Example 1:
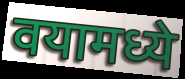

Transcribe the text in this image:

वयामध्ये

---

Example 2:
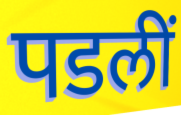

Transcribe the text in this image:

पडलीं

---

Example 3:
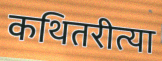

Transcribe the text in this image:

कथितरीत्या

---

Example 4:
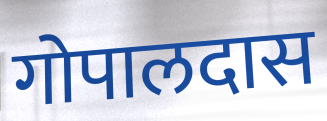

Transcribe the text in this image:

गोपालदास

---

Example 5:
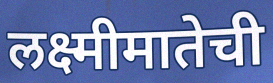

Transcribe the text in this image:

लक्ष्मीमातेची